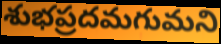
శుభప్రదమగుమని